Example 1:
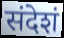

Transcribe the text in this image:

संदेशं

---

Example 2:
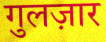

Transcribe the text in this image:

गुलज़ार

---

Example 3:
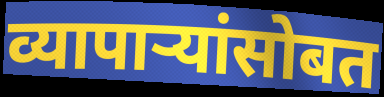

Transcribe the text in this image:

व्यापाऱ्यांसोबत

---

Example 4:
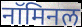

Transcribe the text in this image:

नॉमिनल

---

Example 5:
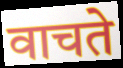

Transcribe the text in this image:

वाचते